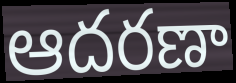
ఆదరణా